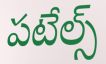
పటేల్స్